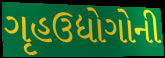
ગૃહઉદ્યોગોની